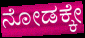
ನೋಡಕ್ಕೇ